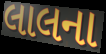
લાલના